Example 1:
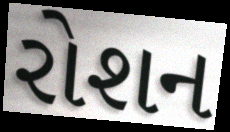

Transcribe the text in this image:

રોશન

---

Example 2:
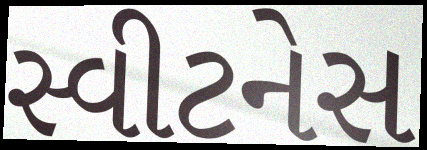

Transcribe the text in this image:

સ્વીટનેસ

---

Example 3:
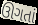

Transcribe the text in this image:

ઊગતાં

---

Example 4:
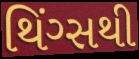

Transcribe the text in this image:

થિંગ્સથી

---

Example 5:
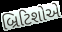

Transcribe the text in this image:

બ્રિટિશોએ